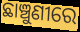
ଛାଞ୍ଚୁଣୀରେ